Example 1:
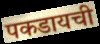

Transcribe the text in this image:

पकडायची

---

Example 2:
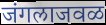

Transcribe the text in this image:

जंगलाजवळ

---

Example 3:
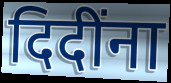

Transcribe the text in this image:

दिदींना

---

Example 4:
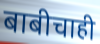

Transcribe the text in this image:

बाबीचाही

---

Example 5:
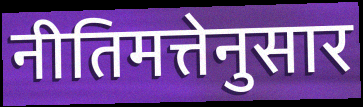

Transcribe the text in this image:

नीतिमत्तेनुसार